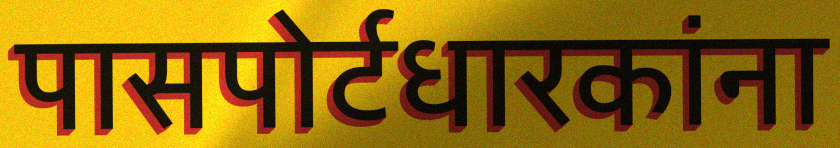
पासपोर्टधारकांना